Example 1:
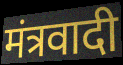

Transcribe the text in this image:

मंत्रवादी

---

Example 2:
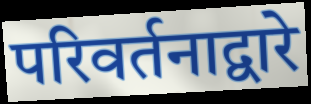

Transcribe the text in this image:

परिवर्तनाद्वारे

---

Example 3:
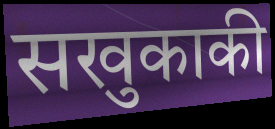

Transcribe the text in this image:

सखुकाकी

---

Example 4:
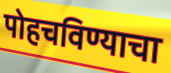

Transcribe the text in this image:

पोहचविण्याचा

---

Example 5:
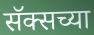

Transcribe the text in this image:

सॅक्सच्या